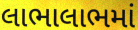
લાભાલાભમાં